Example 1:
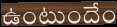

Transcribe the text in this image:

ఉంటుందేం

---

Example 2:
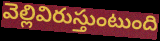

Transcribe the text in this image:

వెల్లివిరుస్తుంటుంది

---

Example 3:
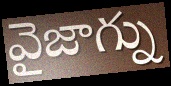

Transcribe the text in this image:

వైజాగ్ను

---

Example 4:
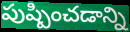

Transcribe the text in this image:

పుష్పించడాన్ని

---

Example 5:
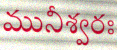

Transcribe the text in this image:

మునీశ్వరః